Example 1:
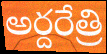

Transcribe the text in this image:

అర్దరేత్రి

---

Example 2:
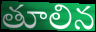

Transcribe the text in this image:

తూలిన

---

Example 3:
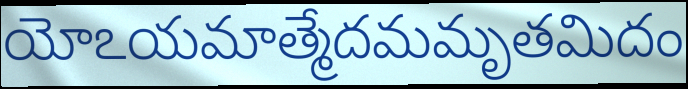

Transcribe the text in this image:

యోఽయమాత్మేదమమృతమిదం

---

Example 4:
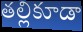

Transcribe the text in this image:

తల్లికూడా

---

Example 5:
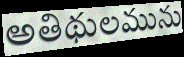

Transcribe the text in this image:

అతిథులమును